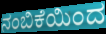
ನಂಬಿಕೆಯಿಂದ